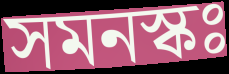
সমনস্কঃ